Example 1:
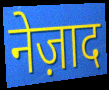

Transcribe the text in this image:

नेज़ाद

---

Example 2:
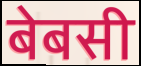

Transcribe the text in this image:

बेबसी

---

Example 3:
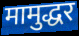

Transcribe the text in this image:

मामुद्धर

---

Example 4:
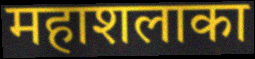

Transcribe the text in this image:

महाशलाका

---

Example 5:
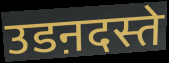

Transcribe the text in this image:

उडऩदस्ते